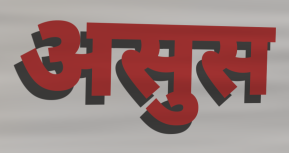
असुस